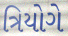
ત્રિયોગે